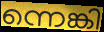
ന്നെങ്കി